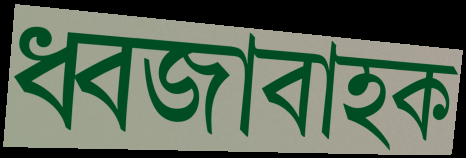
ধ্বজাবাহক